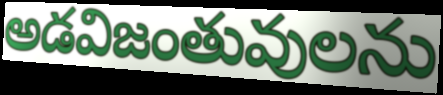
అడవిజంతువులను